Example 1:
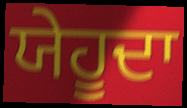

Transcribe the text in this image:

ਯੇਹੂਦਾ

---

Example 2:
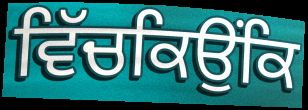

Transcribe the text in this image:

ਵਿੱਚਕਿਉਂਕਿ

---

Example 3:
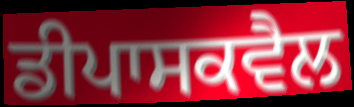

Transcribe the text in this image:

ਡੀਪਾਸਕਵੈਲ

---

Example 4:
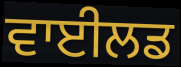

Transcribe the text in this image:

ਵਾਈਲਡ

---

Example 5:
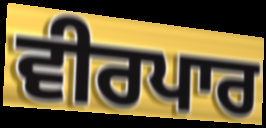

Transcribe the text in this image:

ਵੀਰਪਾਰ